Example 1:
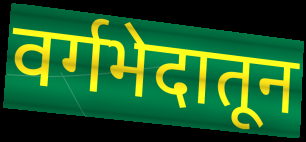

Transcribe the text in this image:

वर्गभेदातून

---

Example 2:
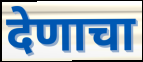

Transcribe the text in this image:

देणाचा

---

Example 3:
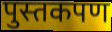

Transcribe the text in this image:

पुस्तकपण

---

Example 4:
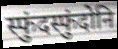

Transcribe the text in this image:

स्फुंदस्फुंदोनि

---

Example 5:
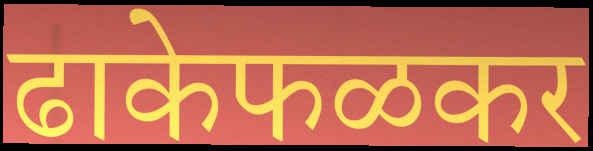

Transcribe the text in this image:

ढाकेफळकर